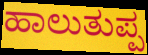
ಹಾಲುತುಪ್ಪ